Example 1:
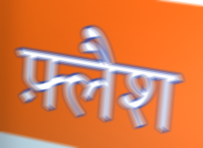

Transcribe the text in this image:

फ़्लैश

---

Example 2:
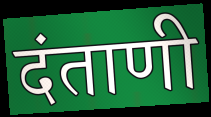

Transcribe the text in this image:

दंताणी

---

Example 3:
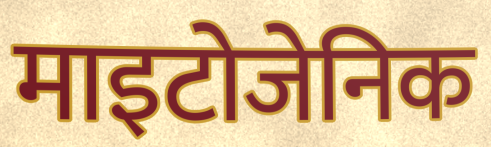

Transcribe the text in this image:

माइटोजेनिक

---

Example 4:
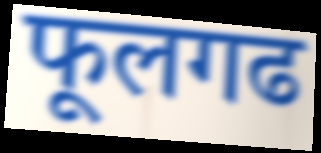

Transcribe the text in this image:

फूलगढ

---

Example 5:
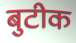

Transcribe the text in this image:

बुटीक